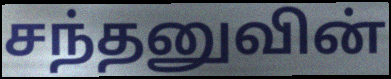
சந்தனுவின்